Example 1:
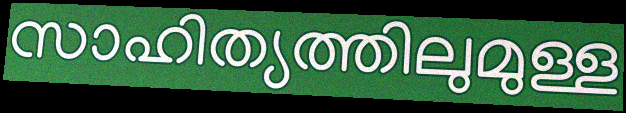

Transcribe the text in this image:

സാഹിത്യത്തിലുമുള്ള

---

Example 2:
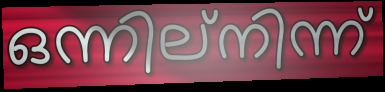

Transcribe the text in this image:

ഒന്നില്നിന്ന്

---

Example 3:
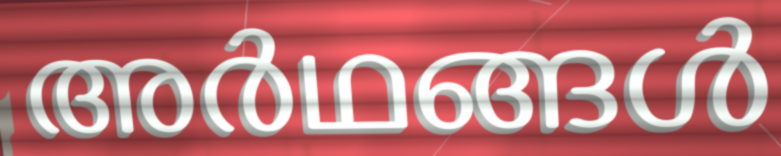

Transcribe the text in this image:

അർഥങ്ങൾ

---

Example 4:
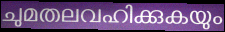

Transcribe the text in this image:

ചുമതലവഹിക്കുകയും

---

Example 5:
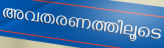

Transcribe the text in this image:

അവതരണത്തിലൂടെ